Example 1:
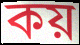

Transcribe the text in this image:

কয়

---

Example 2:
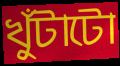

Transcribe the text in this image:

খুঁটাটো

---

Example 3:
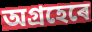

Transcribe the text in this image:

অগ্ৰহেৰে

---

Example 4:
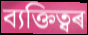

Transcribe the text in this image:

ব্যক্তিত্বৰ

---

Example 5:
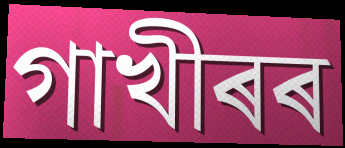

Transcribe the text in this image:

গাখীৰৰ